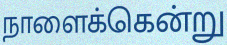
நாளைக்கென்று